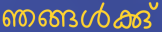
ഞങ്ങൾക്കു്